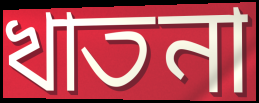
খাতনা